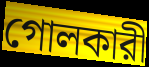
গোলকারী